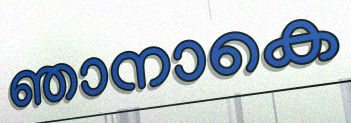
ഞാനാകെ